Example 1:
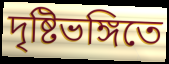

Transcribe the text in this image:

দৃষ্টিভঙ্গিতে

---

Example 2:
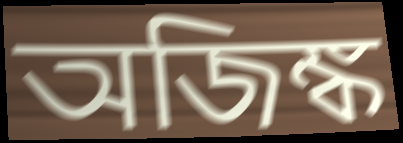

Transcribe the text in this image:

অজিঙ্ক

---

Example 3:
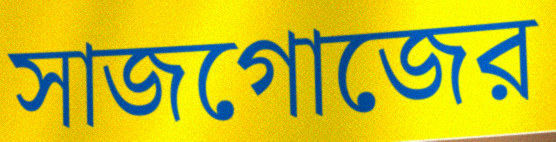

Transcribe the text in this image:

সাজগোজের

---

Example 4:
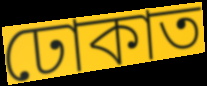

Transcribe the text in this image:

ঢোকাত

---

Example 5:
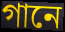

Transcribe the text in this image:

গানে